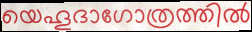
യെഹൂദാഗോത്രത്തിൽ